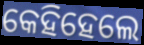
କେହିହେଲେ